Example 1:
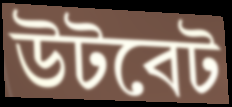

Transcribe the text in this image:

উটবেট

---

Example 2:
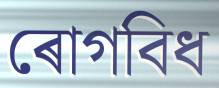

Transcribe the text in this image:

ৰোগবিধ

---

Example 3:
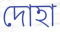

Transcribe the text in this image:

দোহা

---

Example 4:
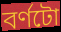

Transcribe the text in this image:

বৰ্ণটো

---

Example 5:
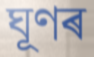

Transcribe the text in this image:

ঘূণৰ